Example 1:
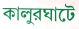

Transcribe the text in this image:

কালুরঘাটে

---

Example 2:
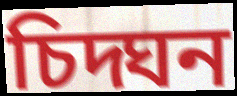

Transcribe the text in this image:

চিদ্ঘন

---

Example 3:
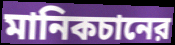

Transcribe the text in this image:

মানিকচানের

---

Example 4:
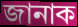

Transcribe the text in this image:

জানাক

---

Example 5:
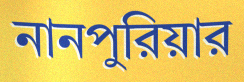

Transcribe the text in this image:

নানপুরিয়ার